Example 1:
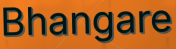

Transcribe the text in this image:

Bhangare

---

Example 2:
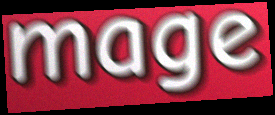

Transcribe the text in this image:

mage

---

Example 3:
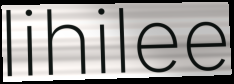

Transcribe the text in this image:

lihilee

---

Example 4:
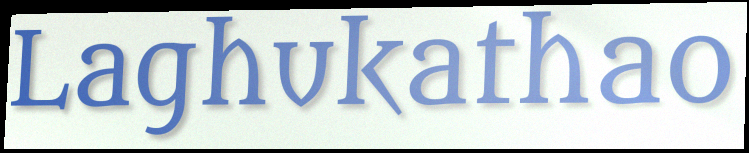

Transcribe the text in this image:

Laghukathao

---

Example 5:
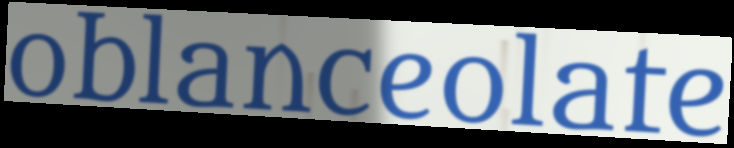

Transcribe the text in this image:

oblanceolate